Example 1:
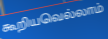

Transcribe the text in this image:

கூறியவெல்லாம்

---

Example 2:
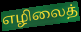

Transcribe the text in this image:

எழிலைத்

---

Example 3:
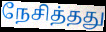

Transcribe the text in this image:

நேசித்தது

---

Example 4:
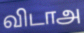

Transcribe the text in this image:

விடாஅ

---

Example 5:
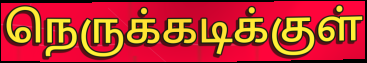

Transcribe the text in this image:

நெருக்கடிக்குள்